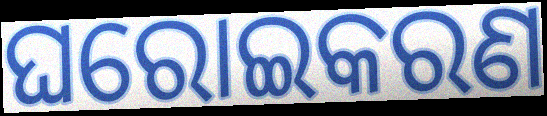
ଘରୋଇକରଣ